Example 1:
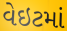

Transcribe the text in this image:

વેઇટમાં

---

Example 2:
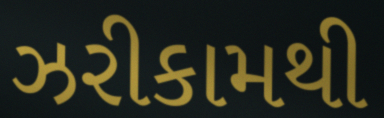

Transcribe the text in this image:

ઝરીકામથી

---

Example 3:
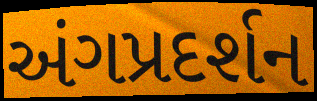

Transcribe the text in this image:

અંગપ્રદર્શન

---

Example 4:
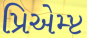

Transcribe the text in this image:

પ્રિએમ્પ્ટ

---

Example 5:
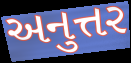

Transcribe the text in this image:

અનુત્તર